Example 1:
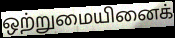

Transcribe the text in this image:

ஒற்றுமையினைக்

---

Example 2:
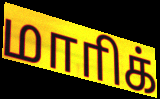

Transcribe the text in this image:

மாரிக்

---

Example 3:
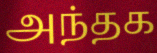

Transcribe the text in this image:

அந்தக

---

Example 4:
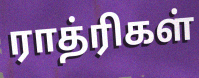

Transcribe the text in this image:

ராத்ரிகள்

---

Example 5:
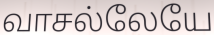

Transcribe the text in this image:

வாசல்லேயே